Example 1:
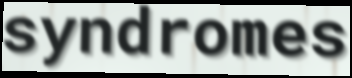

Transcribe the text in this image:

syndromes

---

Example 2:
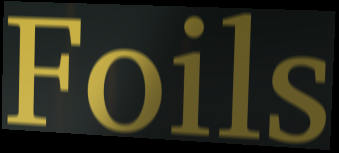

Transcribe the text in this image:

Foils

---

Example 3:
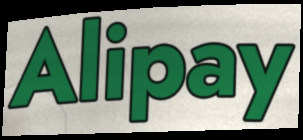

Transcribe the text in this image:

Alipay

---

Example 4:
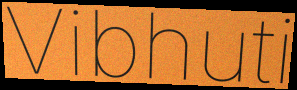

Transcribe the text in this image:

Vibhuti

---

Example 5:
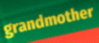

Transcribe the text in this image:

grandmother